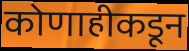
कोणाहीकडून